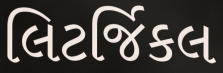
લિટર્જિકલ